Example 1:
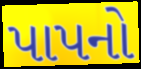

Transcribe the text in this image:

પાપનો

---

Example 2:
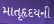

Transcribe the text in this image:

માતૃહૃદયની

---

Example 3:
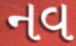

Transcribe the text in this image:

નવ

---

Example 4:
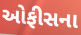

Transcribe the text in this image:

ઓફીસના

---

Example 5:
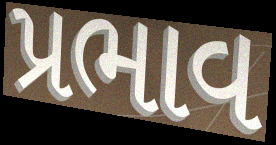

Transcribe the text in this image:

પ્રભાવ